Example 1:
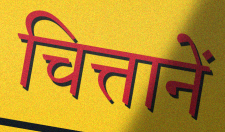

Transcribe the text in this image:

चित्तानें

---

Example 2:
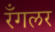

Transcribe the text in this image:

रॅंगलर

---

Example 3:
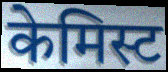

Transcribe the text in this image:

केमिस्ट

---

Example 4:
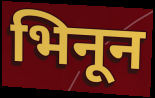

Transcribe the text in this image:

भिनून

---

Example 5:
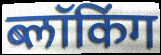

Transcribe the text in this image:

ब्लॉकिंग